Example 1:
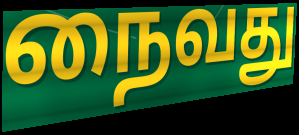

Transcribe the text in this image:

நைவது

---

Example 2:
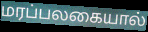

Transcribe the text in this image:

மரப்பலகையால்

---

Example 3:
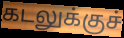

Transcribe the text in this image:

கடலுக்குச்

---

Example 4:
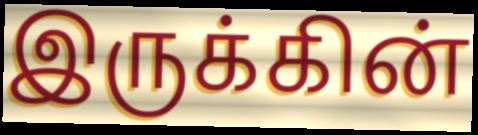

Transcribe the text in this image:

இருக்கின்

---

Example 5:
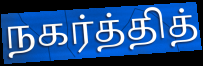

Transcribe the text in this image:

நகர்த்தித்